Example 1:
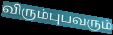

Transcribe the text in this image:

விரும்புபவரும்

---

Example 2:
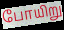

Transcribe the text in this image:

போயிறு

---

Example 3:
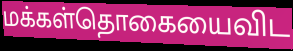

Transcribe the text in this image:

மக்கள்தொகையைவிட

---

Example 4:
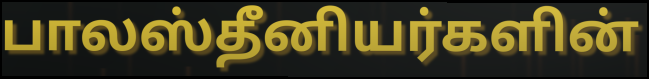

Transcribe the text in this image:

பாலஸ்தீனியர்களின்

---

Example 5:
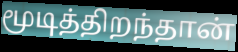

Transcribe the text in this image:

மூடித்திறந்தான்